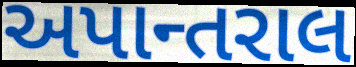
અપાન્તરાલ